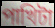
পাখিটা